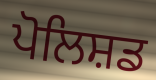
ਪੋਲਿਸ਼ਡ